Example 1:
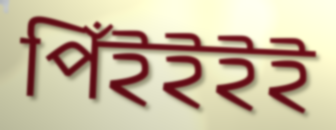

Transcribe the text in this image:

পিঁইইইই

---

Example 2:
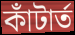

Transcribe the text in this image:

কাঁটার্ত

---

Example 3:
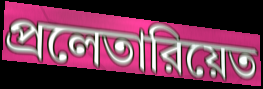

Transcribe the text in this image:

প্রলেতারিয়েত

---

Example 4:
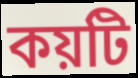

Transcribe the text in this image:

কয়টি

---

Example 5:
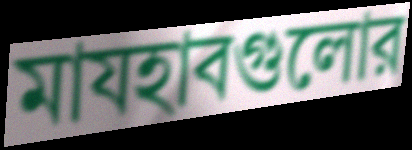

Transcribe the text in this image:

মাযহাবগুলোর